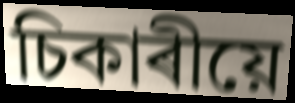
চিকাৰীয়ে